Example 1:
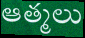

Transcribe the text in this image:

ఆత్మలు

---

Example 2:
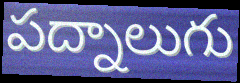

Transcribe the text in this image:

పద్నాలుగు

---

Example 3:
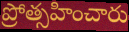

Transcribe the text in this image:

ప్రోత్సహించారు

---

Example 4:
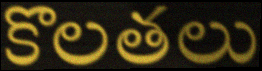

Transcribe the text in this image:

కొలతలు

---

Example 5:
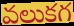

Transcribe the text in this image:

వలుకగ